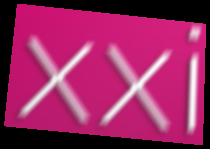
xxi